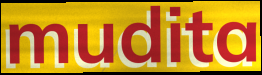
mudita